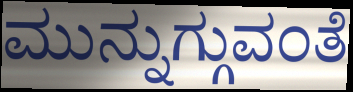
ಮುನ್ನುಗ್ಗುವಂತೆ